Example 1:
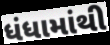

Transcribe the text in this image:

ધંધામાંથી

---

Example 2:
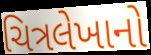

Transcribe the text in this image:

ચિત્રલેખાનો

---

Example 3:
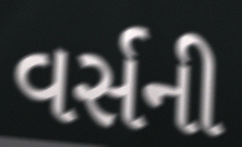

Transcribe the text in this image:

વર્સની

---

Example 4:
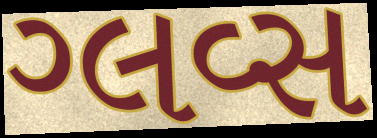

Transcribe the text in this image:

ગ્લવ્સ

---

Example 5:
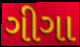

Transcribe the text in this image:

ગીગા